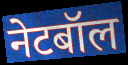
नेटबॉल